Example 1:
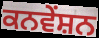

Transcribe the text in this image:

ਕਨਵੇਂਸ਼ਨ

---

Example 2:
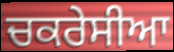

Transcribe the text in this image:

ਚਕਰੇਸੀਆ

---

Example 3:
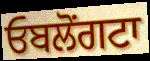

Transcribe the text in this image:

ਓਬਲੋਂਗਟਾ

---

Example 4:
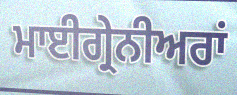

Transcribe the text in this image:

ਮਾਈਗ੍ਰੇਨੀਅਰਾਂ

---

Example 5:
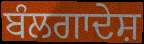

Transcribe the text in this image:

ਬੰਲਗਾਦੇਸ਼